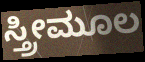
ಸ್ತ್ರೀಮೂಲ